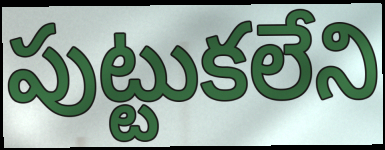
పుట్టుకలేని